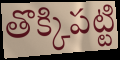
తొక్కిపట్టి